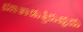
ಮಾತಾಡುತ್ತಿರುವುದು